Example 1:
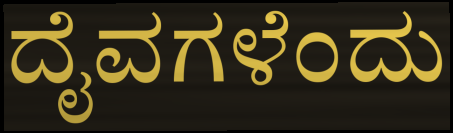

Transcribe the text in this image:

ದೈವಗಳೆಂದು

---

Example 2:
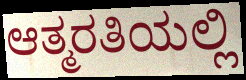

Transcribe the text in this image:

ಆತ್ಮರತಿಯಲ್ಲಿ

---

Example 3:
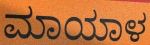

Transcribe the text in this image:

ಮಾಯಾಳ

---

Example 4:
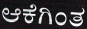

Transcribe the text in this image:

ಆಕೆಗಿಂತ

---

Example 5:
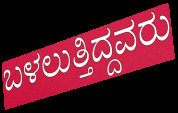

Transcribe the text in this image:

ಬಳಲುತ್ತಿದ್ದವರು